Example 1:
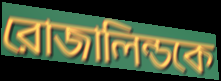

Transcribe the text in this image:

রোজালিন্ডকে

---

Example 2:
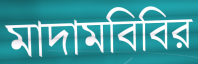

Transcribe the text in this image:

মাদামবিবির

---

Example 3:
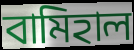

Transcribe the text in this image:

বামিহাল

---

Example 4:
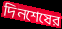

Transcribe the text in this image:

দিনশেষের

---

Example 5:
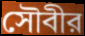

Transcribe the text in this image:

সৌবীর